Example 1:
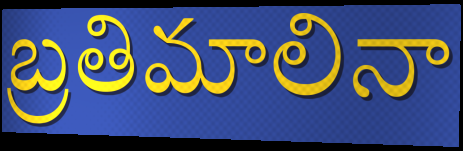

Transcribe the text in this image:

బ్రతిమాలినా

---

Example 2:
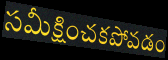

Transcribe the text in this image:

సమీక్షించకపోవడం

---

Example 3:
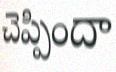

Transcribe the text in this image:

చెప్పిందా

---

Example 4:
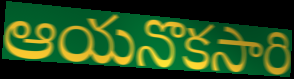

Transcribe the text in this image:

ఆయనొకసారి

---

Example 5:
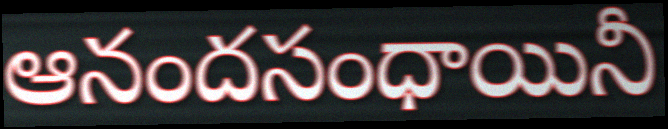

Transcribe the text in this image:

ఆనందసంధాయినీ